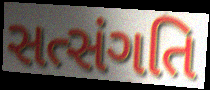
સત્સંગતિ